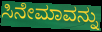
ಸಿನೇಮಾವನ್ನು